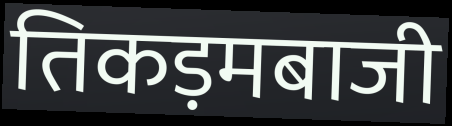
तिकड़मबाजी